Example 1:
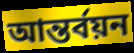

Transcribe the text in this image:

আন্তর্বয়ন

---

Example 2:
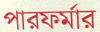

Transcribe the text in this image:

পারফর্মার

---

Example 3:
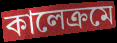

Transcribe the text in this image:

কালেক্রমে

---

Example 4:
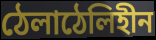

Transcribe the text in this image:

ঠেলাঠেলিহীন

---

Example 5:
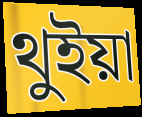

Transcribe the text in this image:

থুইয়া